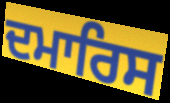
ਦਮਾਰਿਸ